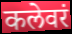
कलेवरं